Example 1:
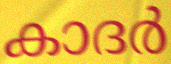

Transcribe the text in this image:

കാദർ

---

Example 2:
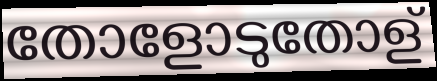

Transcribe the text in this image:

തോളോടുതോള്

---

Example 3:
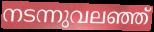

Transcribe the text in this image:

നടന്നുവലഞ്ഞ്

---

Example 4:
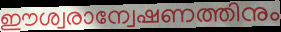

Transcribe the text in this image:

ഈശ്വരാന്വേഷണത്തിനും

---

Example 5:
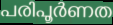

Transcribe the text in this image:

പരിപൂർണത